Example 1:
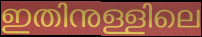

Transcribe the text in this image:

ഇതിനുള്ളിലെ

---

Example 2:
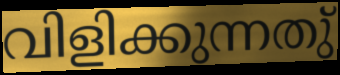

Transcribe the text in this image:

വിളിക്കുന്നതു്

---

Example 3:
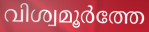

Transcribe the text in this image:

വിശ്വമൂർത്തേ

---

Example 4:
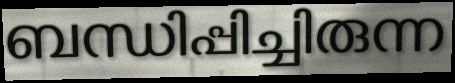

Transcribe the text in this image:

ബന്ധിപ്പിച്ചിരുന്ന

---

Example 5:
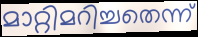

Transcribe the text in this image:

മാറ്റിമറിച്ചതെന്ന്